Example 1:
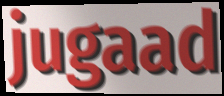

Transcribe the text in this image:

jugaad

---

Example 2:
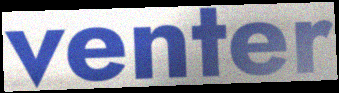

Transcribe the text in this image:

venter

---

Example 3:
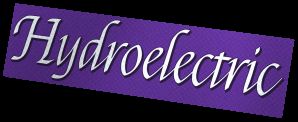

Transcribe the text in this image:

Hydroelectric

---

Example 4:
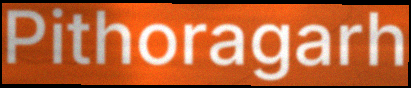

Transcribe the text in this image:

Pithoragarh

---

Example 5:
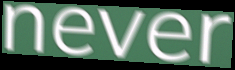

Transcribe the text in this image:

never